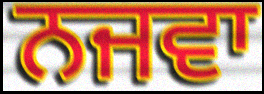
ਨਜਵਾ